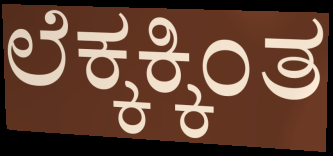
ಲೆಕ್ಕಕ್ಕಿಂತ